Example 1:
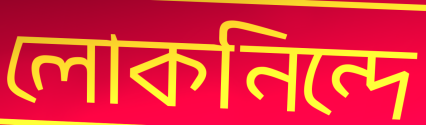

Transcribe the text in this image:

লোকনিন্দে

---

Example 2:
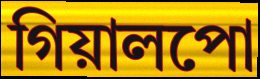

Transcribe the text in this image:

গিয়ালপো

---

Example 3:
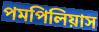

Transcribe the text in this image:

পমপিলিয়াস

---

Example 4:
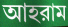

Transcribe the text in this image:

আহরাম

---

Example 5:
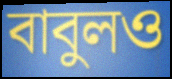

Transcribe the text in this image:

বাবুলও